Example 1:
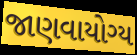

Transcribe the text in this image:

જાણવાયોગ્ય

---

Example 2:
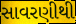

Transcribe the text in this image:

સાવરણીથી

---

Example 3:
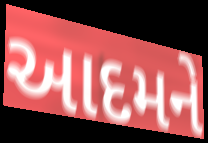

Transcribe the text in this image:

આદમને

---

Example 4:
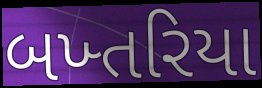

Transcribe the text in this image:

બખ્તરિયા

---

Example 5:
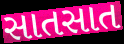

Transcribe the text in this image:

સાતસાત